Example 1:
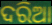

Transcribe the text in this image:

ଦରିଆ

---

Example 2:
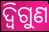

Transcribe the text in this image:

ଦ୍ୱିଗୁଣ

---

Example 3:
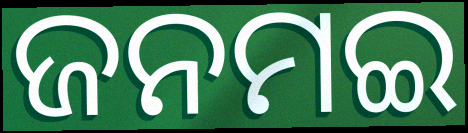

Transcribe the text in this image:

ଜନମଇ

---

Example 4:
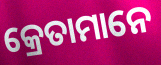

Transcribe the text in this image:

କ୍ରେତାମାନେ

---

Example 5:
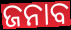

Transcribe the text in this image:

ଜନାବ